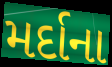
મર્દાના